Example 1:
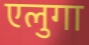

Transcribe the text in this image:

एलुगा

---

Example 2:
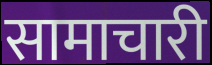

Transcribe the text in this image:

सामाचारी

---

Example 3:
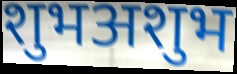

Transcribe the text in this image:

शुभअशुभ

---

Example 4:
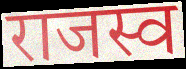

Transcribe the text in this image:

राजस्व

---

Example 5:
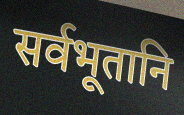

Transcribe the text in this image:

सर्वभूतानि